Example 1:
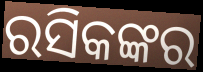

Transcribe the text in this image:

ରସିକଙ୍କର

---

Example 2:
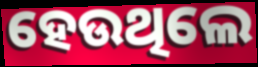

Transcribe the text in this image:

ହେଉଥିଲେ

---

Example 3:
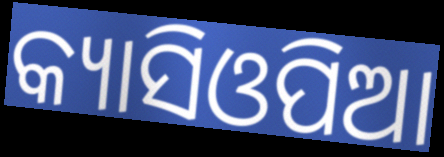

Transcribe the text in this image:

କ୍ୟାସିଓପିଆ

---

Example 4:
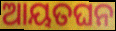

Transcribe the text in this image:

ଆୟତଘନ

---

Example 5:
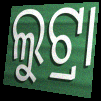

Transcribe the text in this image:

ଲୁଟ୍ରା